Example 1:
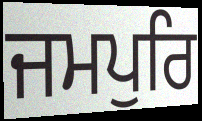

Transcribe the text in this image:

ਜਮਪੁਰਿ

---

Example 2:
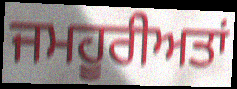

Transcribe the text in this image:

ਜਮਹੂਰੀਅਤਾਂ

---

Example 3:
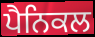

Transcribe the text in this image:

ਪੈਨਿਕਲ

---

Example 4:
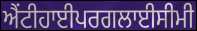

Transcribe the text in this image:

ਐਂਟੀਹਾਈਪਰਗਲਾਈਸੀਮੀ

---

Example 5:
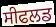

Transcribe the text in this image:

ਸੀਫਲਡ